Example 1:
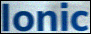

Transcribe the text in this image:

Ionic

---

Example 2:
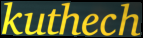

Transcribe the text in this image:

kuthech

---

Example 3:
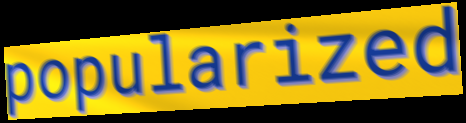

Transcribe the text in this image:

popularized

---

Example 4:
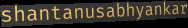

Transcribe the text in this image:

shantanusabhyankar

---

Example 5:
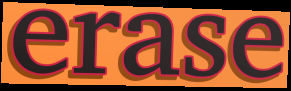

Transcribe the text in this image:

erase